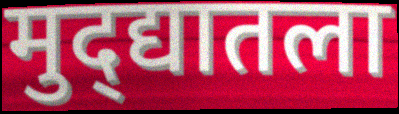
मुद्द्यातला